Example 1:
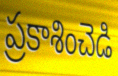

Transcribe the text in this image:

ప్రకాశించెడి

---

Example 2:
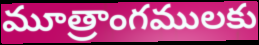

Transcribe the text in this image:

మూత్రాంగములకు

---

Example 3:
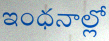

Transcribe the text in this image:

ఇంధనాల్లో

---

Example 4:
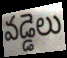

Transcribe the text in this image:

వడ్డెలు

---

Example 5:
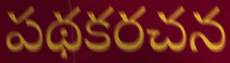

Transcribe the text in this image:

పథకరచన